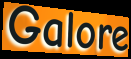
Galore